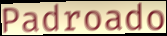
Padroado